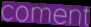
coment